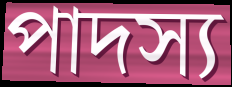
পাদস্য